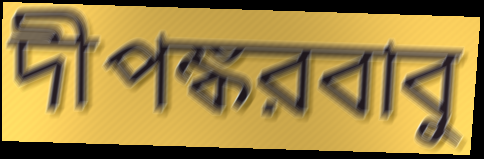
দীপঙ্করবাবু